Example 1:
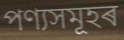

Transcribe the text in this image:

পণ্যসমূহৰ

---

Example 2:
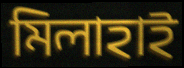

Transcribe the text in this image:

মিলাহাই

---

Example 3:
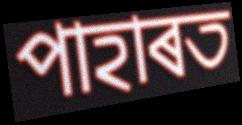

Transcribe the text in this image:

পাহাৰত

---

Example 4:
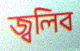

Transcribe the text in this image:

জ্বলিব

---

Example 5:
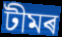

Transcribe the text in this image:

টীমৰ